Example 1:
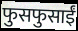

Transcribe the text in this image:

फुसफुसाईं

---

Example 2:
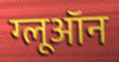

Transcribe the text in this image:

ग्लूऑन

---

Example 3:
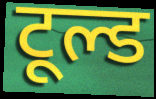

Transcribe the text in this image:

टूल्ड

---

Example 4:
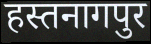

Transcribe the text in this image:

हस्तनागपुर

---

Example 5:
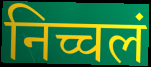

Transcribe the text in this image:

निच्चलं